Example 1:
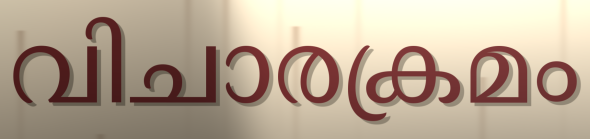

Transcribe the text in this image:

വിചാരക്രമം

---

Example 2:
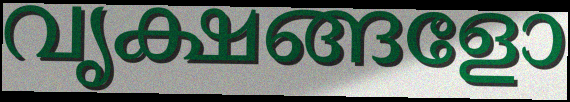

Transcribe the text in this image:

വൃക്ഷങ്ങളോ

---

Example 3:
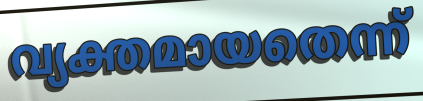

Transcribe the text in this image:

വ്യക്തമായതെന്ന്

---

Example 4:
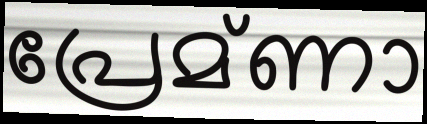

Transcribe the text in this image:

പ്രേമ്ണാ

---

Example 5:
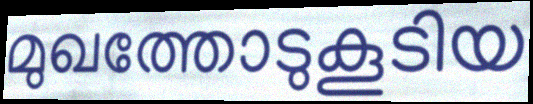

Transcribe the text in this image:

മുഖത്തോടുകൂടിയ